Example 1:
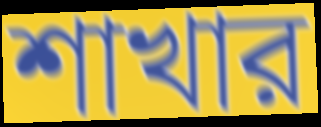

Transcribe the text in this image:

শাখার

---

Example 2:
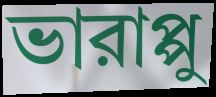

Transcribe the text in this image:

ভারাপ্পু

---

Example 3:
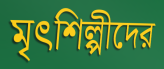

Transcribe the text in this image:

মৃৎশিল্পীদের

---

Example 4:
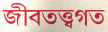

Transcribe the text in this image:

জীবতত্ত্বগত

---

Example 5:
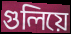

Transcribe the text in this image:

গুলিয়ে